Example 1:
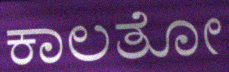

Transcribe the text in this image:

ಕಾಲತೋ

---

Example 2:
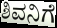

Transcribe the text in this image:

ಶಿವನಿಗೆ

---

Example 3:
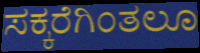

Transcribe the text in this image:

ಸಕ್ಕರೆಗಿಂತಲೂ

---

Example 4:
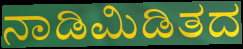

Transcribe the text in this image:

ನಾಡಿಮಿಡಿತದ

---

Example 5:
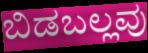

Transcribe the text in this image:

ಬಿಡಬಲ್ಲವು